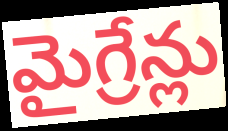
మైగ్రేన్లు